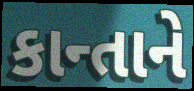
કાન્તાને